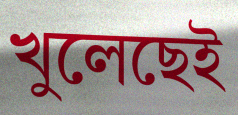
খুলেছেই